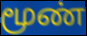
மூண்